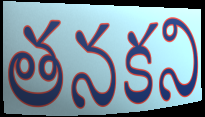
తనకని